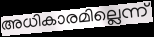
അധികാരമില്ലെന്ന്